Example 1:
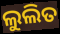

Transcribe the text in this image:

ଲୁଲିତ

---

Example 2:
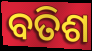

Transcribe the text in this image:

ବତିଶ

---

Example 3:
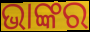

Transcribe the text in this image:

ଭାଙ୍କର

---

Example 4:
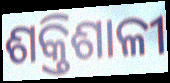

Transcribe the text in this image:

ଶକ୍ତିଶାଳୀ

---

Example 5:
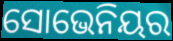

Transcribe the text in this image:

ସୋଭେନିୟର